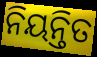
ନିୟନ୍ତିତ